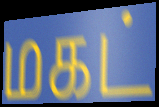
மகட்